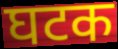
घटक